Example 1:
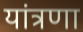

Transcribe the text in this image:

यांत्रणा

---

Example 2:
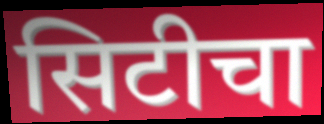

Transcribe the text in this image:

सिटीचा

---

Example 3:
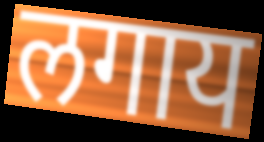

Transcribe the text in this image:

लगाय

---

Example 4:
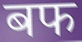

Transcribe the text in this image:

बफ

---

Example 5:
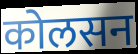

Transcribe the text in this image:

कोलसन